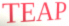
TEAP